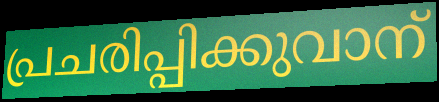
പ്രചരിപ്പിക്കുവാന്